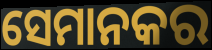
ସେମାନକର